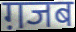
ग़जब